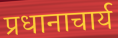
प्रधानाचार्य